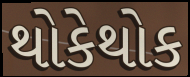
થોકેથોક